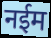
नईम